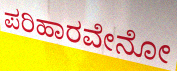
ಪರಿಹಾರವೇನೋ